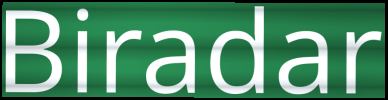
Biradar